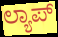
ಲ್ಯಾಪ್